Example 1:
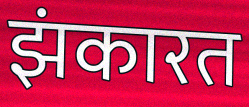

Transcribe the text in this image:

झंकारत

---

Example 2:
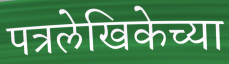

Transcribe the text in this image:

पत्रलेखिकेच्या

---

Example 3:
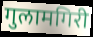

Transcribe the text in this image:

गुलामगिरी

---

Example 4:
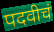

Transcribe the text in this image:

पदवीचं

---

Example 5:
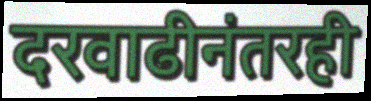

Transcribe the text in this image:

दरवाढीनंतरही